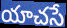
యాచసే